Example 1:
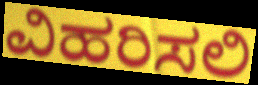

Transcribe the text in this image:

ವಿಹರಿಸಲಿ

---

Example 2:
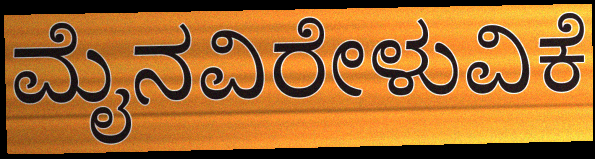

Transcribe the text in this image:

ಮೈನವಿರೇಳುವಿಕೆ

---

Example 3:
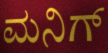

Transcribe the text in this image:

ಮನಿಗ್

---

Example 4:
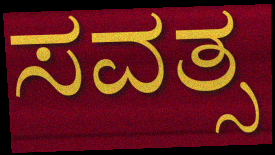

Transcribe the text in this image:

ಸವತ್ಸ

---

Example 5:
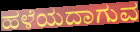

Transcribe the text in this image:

ಹಳೆಯದಾಗುವ